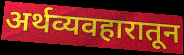
अर्थव्यवहारातून